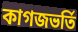
কাগজভর্তি